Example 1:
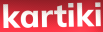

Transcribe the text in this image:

kartiki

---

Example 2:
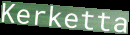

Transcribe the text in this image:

Kerketta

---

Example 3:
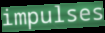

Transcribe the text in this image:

impulses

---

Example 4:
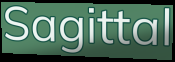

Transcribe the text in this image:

Sagittal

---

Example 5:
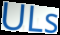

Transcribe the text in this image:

ULs